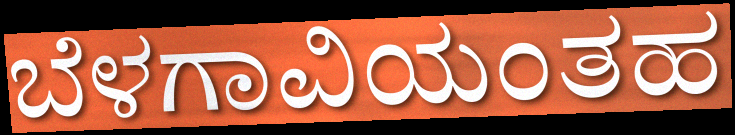
ಬೆಳಗಾವಿಯಂತಹ